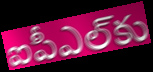
ఐపీఎల్‌కు